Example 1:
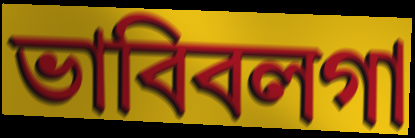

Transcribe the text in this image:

ভাবিবলগা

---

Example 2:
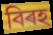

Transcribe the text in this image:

বিৰহ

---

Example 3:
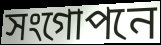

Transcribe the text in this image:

সংগোপনে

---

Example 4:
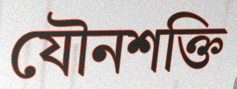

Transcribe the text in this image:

যৌনশক্তি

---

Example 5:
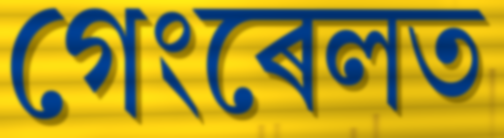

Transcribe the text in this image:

গেংৰেলত